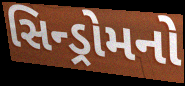
સિન્ડ્રોમનો